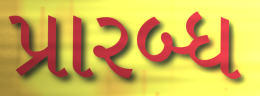
પ્રારબ્ધ